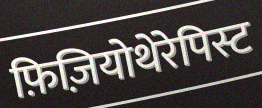
फ़िज़ियोथेरेपिस्ट